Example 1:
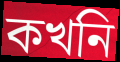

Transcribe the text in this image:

কখনি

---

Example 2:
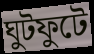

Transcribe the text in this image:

ঘুটফুটে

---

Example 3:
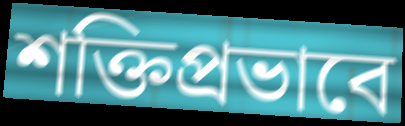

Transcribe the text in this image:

শক্তিপ্রভাবে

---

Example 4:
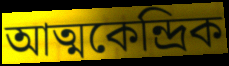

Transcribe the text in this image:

আত্মকেন্দ্রিক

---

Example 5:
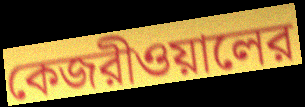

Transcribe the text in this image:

কেজরীওয়ালের